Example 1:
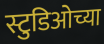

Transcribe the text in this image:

स्टुडिओच्या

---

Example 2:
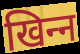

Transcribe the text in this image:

खिन्‍न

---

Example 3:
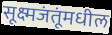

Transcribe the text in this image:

सूक्ष्मजंतूंमधील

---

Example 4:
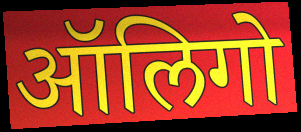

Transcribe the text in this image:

ऑलिगो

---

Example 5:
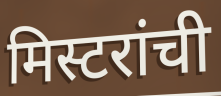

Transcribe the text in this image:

मिस्टरांची